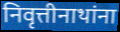
निवृत्तीनाथांना